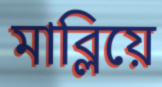
মাব্লিয়ে